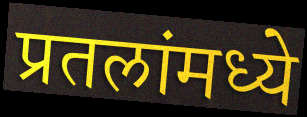
प्रतलांमध्ये